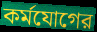
কর্মযোগের